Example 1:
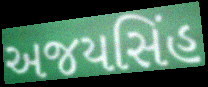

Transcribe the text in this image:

અજયસિંહ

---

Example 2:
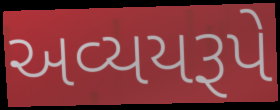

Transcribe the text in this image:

અવ્યયરૂપે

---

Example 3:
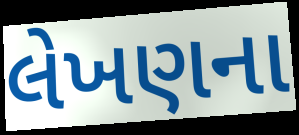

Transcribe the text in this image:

લેખણના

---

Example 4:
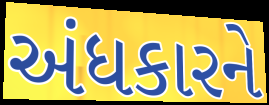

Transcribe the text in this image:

અંધકારને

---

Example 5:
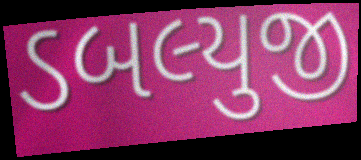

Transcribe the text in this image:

ડબલ્યુજી